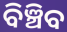
ବିଞ୍ଚିବ